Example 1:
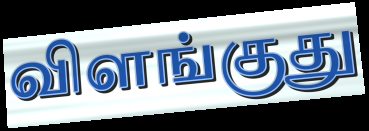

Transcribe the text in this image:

விளங்குது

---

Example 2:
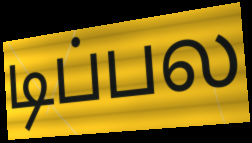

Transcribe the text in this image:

டிப்பல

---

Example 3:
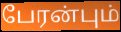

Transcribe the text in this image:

பேரன்பும்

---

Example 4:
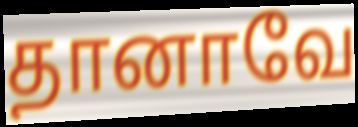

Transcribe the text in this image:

தானாவே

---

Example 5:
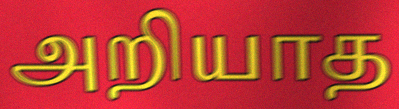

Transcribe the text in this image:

அறியாத